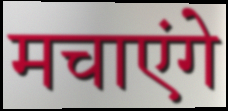
मचाएंगे